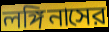
লঙ্গিনাসের